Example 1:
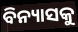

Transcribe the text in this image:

ବିନ୍ୟାସକୁ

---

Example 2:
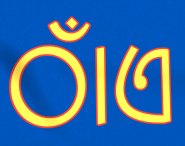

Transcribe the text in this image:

ଠାଁଏ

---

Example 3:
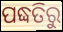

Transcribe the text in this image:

ପଦ୍ଧତିରୁ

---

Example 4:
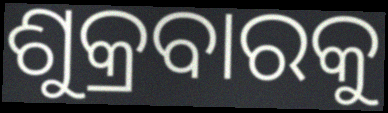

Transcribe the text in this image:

ଶୁକ୍ରବାରକୁ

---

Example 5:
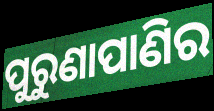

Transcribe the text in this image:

ପୁରୁଣାପାଣିର